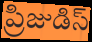
ప్రిజుడిస్